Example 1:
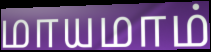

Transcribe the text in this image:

மாயமாம்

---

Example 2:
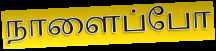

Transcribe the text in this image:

நாளைப்போ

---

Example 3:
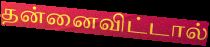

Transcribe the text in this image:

தன்னைவிட்டால்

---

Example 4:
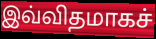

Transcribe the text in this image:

இவ்விதமாகச்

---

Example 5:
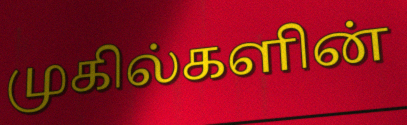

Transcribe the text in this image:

முகில்களின்